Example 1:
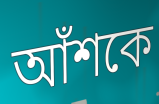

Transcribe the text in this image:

আঁশকে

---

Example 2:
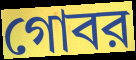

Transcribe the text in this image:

গোবর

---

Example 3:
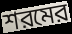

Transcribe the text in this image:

শরমের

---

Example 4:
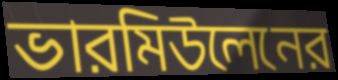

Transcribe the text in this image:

ভারমিউলেনের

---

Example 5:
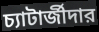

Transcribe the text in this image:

চ্যাটার্জীদার